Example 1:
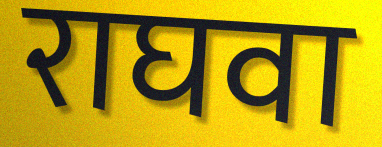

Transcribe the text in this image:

राघवा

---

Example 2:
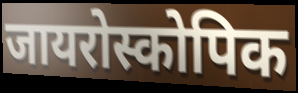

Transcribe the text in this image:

जायरोस्कोपिक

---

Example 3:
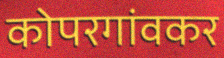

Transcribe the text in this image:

कोपरगांवकर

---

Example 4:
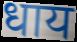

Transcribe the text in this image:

धाय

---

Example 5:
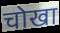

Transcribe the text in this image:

चोखा